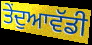
ਤੇਂਦੁਆਵੱਡੀ